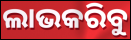
ଲାଭକରିବୁ